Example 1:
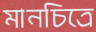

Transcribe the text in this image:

মানচিত্রে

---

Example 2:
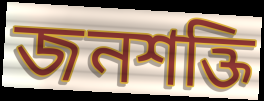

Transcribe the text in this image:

জনশক্তি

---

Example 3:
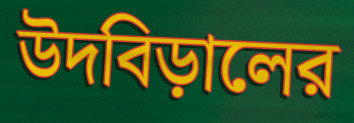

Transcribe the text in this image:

উদবিড়ালের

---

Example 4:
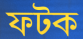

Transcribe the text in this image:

ফটক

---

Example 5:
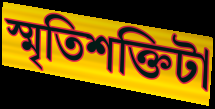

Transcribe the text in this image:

স্মৃতিশক্তিটা